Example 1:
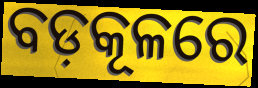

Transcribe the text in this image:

ବଡ଼କୂଳରେ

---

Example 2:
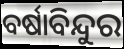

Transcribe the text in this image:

ବର୍ଷାବିନ୍ଦୁର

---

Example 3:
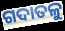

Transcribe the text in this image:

ଗଦାତଳୁ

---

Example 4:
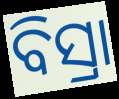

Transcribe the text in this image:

ବିସ୍ରା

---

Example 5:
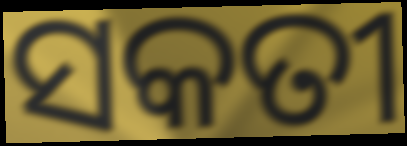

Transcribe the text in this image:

ସକତୀ